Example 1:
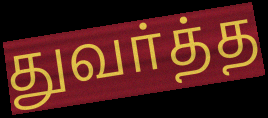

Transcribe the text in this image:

துவர்த்த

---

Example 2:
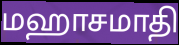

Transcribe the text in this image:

மஹாசமாதி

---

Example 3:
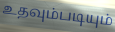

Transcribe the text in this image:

உதவும்படியும்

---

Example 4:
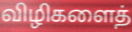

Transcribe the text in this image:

விழிகளைத்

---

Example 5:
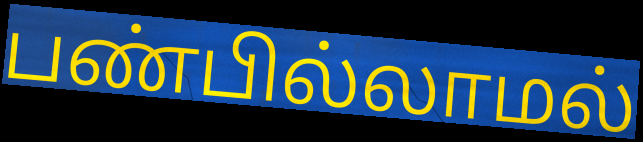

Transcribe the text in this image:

பண்பில்லாமல்